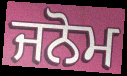
ਜਨੋਮ